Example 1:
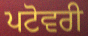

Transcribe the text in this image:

ਪਟੋਵਰੀ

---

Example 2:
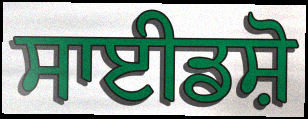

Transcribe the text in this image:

ਸਾਈਡਸ਼ੋ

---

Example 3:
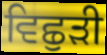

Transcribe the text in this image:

ਵਿਛੁੜੀ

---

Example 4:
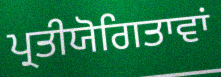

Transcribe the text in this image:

ਪ੍ਰਤੀਯੋਗਿਤਾਵਾਂ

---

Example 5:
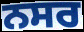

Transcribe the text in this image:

ਨਸਰ